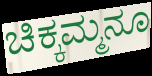
ಚಿಕ್ಕಮ್ಮನೂ